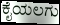
ಕೈಯಲಗು